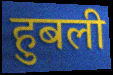
हुबली